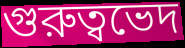
গুরুত্বভেদ